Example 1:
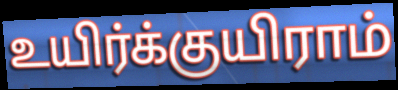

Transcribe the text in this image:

உயிர்க்குயிராம்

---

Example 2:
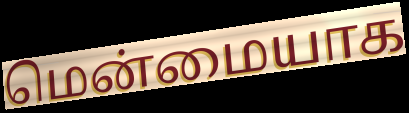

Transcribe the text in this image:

மென்மையாக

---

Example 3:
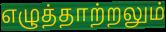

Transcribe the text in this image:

எழுத்தாற்றலும்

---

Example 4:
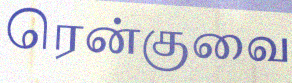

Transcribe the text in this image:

ரென்குவை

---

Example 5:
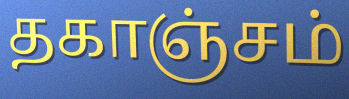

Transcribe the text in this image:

தகாஞ்சம்